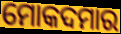
ମୋକଦମାର